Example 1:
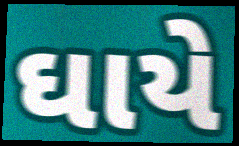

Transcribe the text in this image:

ઘાયે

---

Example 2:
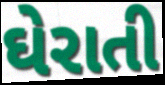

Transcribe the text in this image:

ઘેરાતી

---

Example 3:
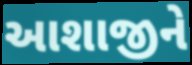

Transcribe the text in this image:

આશાજીને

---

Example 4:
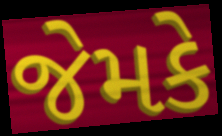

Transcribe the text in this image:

જેમકે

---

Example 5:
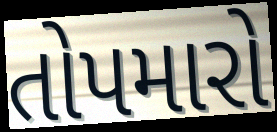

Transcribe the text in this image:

તોપમારો